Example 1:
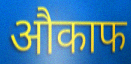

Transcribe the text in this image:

औकाफ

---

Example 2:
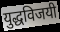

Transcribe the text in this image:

युद्धविजयी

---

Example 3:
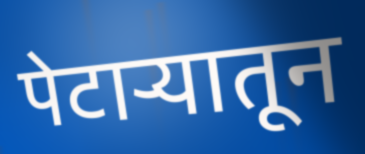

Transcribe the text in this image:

पेटाऱ्यातून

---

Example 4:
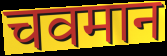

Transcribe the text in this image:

चवमान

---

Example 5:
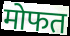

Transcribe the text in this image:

मोफत